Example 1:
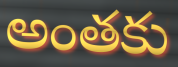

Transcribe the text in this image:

అంతకు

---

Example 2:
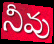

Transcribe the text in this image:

నీవు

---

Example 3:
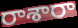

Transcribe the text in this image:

రాశారా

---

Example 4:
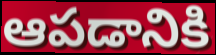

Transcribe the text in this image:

ఆపడానికి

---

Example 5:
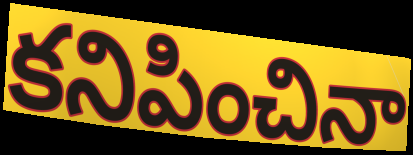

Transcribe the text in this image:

కనిపించినా